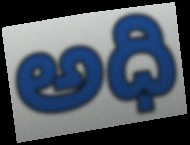
అధి